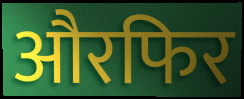
औरफिर